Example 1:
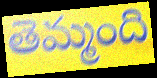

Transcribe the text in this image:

తెమ్మంది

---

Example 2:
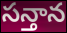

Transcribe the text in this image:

సన్తాన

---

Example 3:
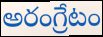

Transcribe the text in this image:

అరంగ్రేటం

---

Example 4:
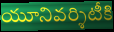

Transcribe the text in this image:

యూనివర్శిటీకి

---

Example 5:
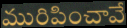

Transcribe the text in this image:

మురిపించావే